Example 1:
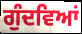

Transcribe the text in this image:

ਗੁੰਦਵਿਆਂ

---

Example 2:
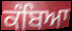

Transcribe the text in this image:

ਕੰਬਿਆ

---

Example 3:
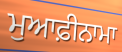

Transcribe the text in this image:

ਮੁਆਫ਼ੀਨਾਮਾ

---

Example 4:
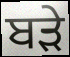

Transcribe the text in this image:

ਬਡ਼ੇ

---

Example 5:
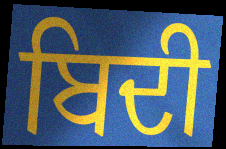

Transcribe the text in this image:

ਬਿਦੀ